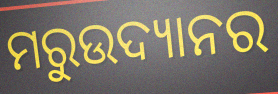
ମରୁଉଦ୍ୟାନର